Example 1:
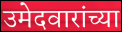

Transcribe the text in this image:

उमेदवारांच्या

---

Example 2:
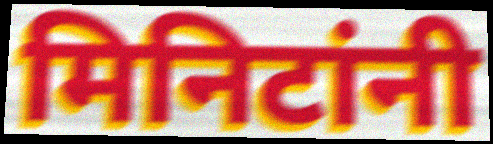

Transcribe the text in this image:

मिनिटांनी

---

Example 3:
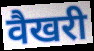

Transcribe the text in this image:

वैखरी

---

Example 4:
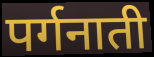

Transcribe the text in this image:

पर्गनाती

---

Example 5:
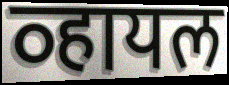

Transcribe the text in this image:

व्हायल